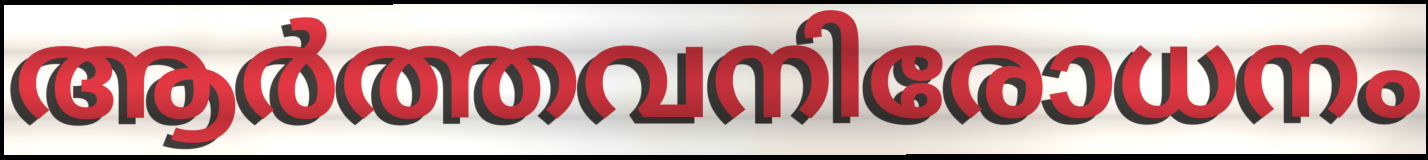
ആർത്തവനിരോധനം